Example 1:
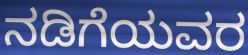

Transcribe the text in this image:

ನಡಿಗೆಯವರ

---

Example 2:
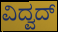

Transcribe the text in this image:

ವಿದ್ವದ್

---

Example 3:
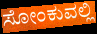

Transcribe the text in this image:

ಸೋಂಕುವಲ್ಲಿ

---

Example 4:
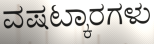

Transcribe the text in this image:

ವಷಟ್ಕಾರಗಳು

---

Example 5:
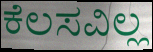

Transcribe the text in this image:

ಕೆಲಸವಿಲ್ಲ